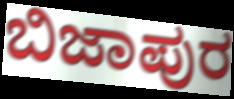
ಬಿಜಾಪುರ